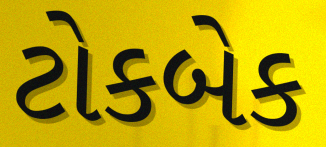
ટોકબેક